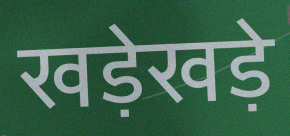
खड़ेखड़े